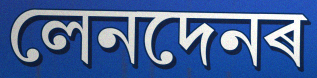
লেনদেনৰ